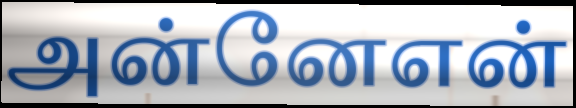
அன்னேஎன்